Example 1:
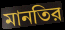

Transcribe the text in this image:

মানতির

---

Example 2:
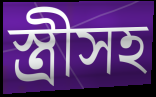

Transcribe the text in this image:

স্ত্রীসহ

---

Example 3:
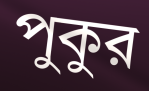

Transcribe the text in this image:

পুকুর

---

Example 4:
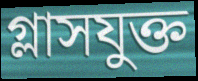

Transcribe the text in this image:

গ্লাসযুক্ত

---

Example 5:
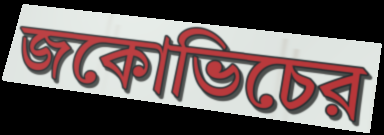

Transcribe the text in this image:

জকোভিচের